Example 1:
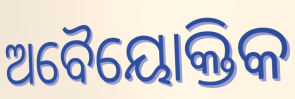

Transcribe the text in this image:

ଅବୈୟୋକ୍ତିକ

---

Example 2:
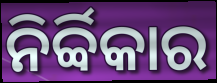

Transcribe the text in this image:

ନିର୍ବ୍ବିକାର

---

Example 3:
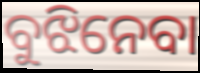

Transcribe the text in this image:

ବୁଝିନେବା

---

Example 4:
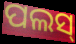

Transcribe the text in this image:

ପଲସ୍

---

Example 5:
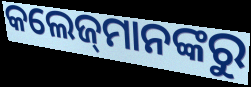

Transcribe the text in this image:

କଲେଜ୍‌ମାନଙ୍କରୁ